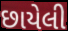
છાયેલી